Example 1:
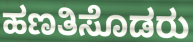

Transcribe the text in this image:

ಹಣತಿಸೊಡರು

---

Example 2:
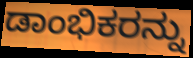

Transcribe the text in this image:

ಡಾಂಭಿಕರನ್ನು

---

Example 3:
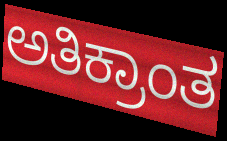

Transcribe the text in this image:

ಅತಿಕ್ರಾಂತ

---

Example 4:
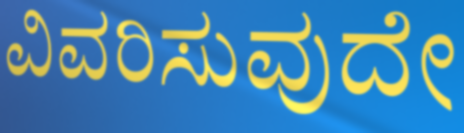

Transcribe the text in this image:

ವಿವರಿಸುವುದೇ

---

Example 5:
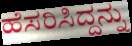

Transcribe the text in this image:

ಹೆಸರಿಸಿದ್ದನ್ನು